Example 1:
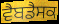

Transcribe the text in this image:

ਵੈਬਡੈਸਕ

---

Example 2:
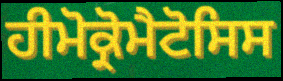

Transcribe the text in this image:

ਹੀਮੋਕ੍ਰੋਮੈਟੋਸਿਸ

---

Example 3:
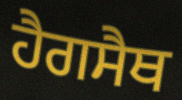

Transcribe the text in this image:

ਹੈਗਸੈਥ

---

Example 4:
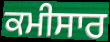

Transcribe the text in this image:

ਕਮੀਸਾਰ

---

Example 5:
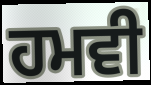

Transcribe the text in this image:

ਹਮਵੀ